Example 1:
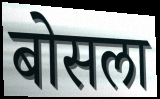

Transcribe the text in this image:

बोसला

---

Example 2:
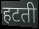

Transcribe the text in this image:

हटती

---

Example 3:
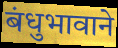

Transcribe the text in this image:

बंधुभावाने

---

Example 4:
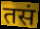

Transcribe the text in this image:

तसं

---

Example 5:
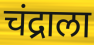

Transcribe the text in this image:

चंद्राला